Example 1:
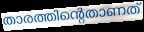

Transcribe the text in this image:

താരത്തിന്റെതാണത്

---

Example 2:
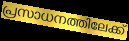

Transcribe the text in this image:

പ്രസാധനത്തിലേക്ക്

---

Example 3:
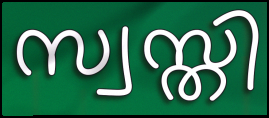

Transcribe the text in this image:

സ്വസ്തി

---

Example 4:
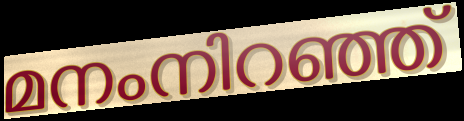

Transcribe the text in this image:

മനംനിറഞ്ഞ്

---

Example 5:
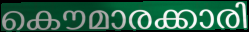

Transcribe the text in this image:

കൌമാരക്കാരി